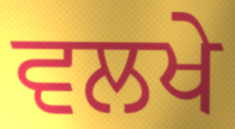
ਵਲਖੇ